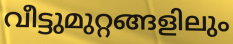
വീട്ടുമുറ്റങ്ങളിലും